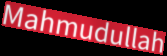
Mahmudullah